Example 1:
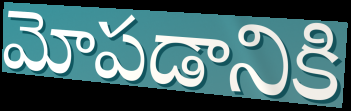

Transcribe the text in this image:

మోపడానికి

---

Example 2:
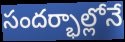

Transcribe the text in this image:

సందర్భాల్లోనే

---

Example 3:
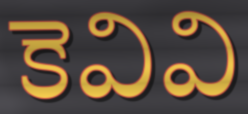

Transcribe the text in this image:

కెవివి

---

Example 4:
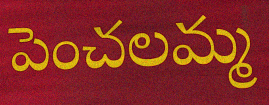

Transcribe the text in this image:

పెంచలమ్మ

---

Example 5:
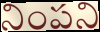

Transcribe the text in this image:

నింపని